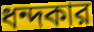
ধন্দকার